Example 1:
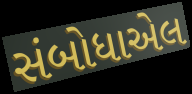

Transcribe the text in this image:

સંબોધાએલ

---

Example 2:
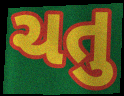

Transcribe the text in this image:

ચતુ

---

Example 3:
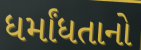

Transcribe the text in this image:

ધર્માંધતાનો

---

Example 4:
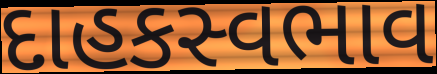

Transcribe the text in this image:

દાહકસ્વભાવ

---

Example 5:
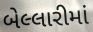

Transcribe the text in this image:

બેલ્લારીમાં